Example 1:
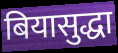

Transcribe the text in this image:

बियासुद्धा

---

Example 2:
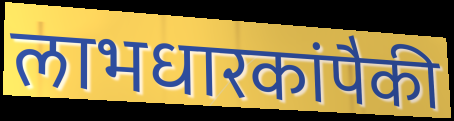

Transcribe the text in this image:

लाभधारकांपैकी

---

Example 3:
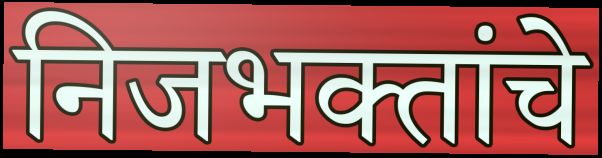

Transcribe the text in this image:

निजभक्तांचे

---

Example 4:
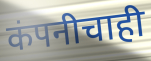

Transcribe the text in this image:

कंपनीचाही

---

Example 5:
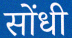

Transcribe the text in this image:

सोंधी